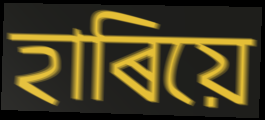
হাৰিয়ে